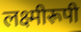
लक्ष्मीरूपी